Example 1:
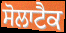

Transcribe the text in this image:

ਸੋਲਾਟੈਕ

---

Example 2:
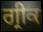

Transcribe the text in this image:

ਗ੍ਰੀਕ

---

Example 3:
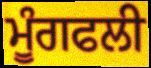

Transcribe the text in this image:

ਮੂੰਗਫਲੀ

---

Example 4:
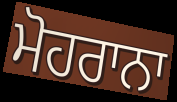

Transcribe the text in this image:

ਮੋਹਰਾਨਾ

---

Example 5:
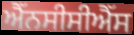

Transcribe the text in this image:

ਐੱਨਸੀਸੀਐੱਸ